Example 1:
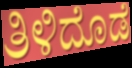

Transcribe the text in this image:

ತಿಳಿದೊಡೆ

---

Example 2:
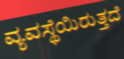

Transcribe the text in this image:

ವ್ಯವಸ್ಥೆಯಿರುತ್ತದೆ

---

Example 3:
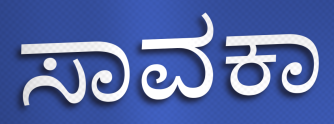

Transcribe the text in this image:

ಸಾವಕಾ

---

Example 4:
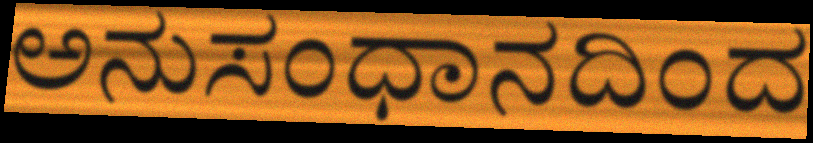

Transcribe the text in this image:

ಅನುಸಂಧಾನದಿಂದ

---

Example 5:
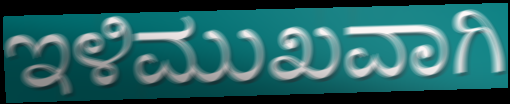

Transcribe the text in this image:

ಇಳಿಮುಖವಾಗಿ